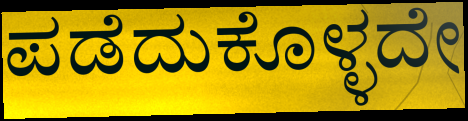
ಪಡೆದುಕೊಳ್ಳದೇ